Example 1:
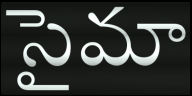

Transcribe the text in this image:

సైమా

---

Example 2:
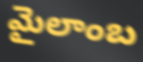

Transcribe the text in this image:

మైలాంబ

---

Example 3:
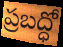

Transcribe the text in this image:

ప్రబద్ధో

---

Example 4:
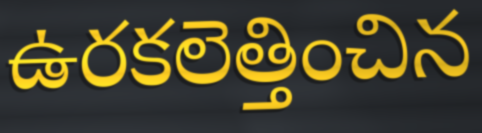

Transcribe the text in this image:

ఉరకలెత్తించిన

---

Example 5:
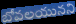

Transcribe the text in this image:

బోవలయునని